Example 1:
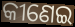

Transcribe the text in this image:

କୀଣେଇ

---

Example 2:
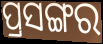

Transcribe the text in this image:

ପ୍ରସଙ୍ଗର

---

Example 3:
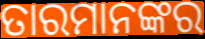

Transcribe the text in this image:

ତାରମାନଙ୍କର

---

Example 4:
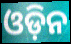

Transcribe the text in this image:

ଓଡ଼ିନ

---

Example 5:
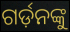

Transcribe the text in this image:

ଗର୍ଡ଼ନଙ୍କୁ